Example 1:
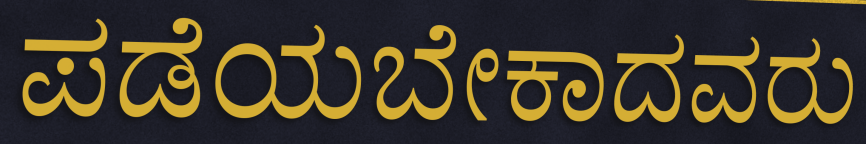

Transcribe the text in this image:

ಪಡೆಯಬೇಕಾದವರು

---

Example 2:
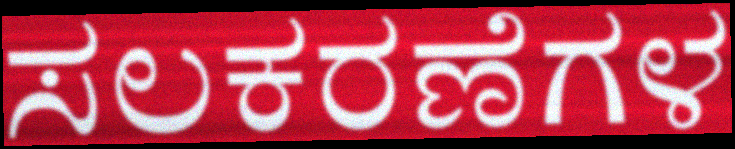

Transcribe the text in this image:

ಸಲಕರಣೆಗಳ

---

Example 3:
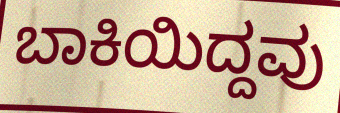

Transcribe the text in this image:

ಬಾಕಿಯಿದ್ದವು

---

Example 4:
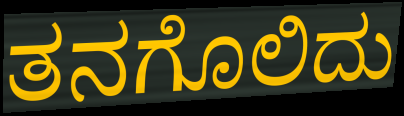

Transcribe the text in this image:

ತನಗೊಲಿದು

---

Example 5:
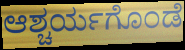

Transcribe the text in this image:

ಆಶ್ಚರ್ಯಗೊಂಡೆ